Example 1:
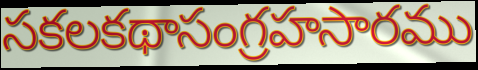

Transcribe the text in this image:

సకలకథాసంగ్రహసారము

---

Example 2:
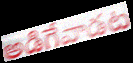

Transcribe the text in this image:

అడిగేవాడట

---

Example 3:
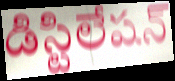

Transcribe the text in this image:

డిస్టిలేషన్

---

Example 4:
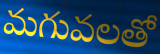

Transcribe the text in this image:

మగువలతో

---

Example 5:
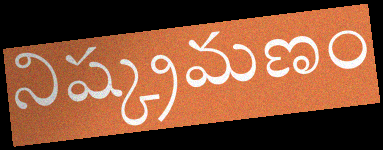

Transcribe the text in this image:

నిష్క్రమణం